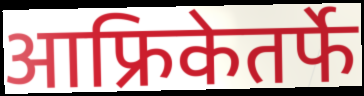
आफ्रिकेतर्फे